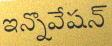
ఇన్నొవేషన్